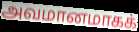
அவமானமாகக்